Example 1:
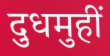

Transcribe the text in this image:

दुधमुहीं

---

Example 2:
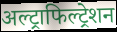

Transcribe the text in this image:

अल्ट्राफिल्ट्रेशन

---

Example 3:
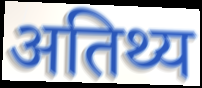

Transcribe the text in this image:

अतिथ्य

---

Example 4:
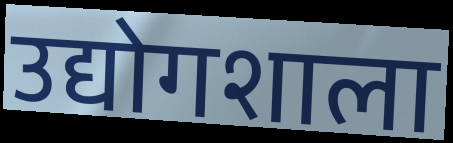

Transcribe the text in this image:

उद्योगशाला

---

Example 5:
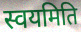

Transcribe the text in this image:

स्वयमिति